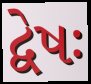
દ્વેષઃ